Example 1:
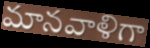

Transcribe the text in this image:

మానవాళిగా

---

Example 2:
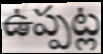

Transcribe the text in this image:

ఉప్పట్ల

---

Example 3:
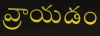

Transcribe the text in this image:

వ్రాయడం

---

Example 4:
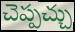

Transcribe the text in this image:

చెప్పచ్చు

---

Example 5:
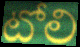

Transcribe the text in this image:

టోలి